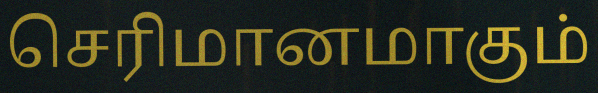
செரிமானமாகும்